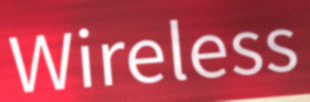
Wireless